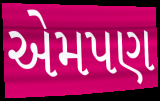
એમપણ